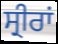
ਸ੍ਰੀਰਾਂ